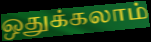
ஒதுக்கலாம்